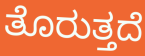
ತೊರುತ್ತದೆ